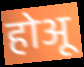
होअू